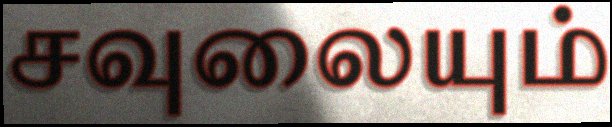
சவுலையும்